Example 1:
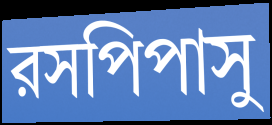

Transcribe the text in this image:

রসপিপাসু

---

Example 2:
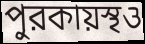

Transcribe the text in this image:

পুরকায়স্থও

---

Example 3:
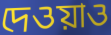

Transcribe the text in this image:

দেওয়াও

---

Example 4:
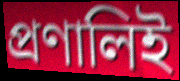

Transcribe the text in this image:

প্রণালিই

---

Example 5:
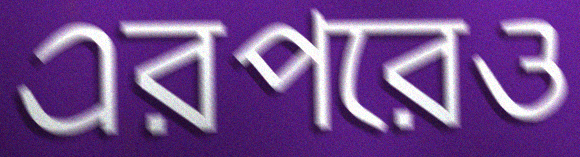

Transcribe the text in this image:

এরপরেও